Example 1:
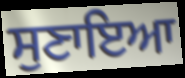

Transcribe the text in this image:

ਸੁਣਾਇਆ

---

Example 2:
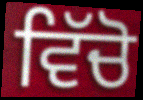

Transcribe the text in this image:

ਵਿੱਚੋ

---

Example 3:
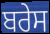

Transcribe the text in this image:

ਬਰੇਸ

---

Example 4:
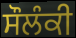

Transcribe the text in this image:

ਸੌਲੰਕੀ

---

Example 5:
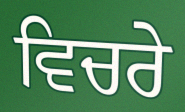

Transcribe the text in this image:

ਵਿਚਰੇ